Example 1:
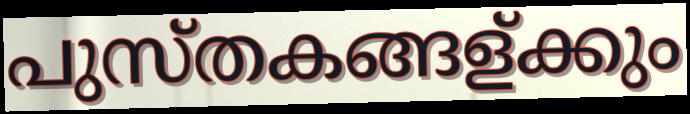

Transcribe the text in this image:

പുസ്തകങ്ങള്ക്കും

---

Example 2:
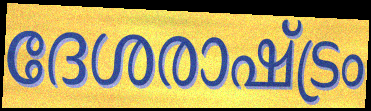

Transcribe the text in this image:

ദേശരാഷ്ട്രം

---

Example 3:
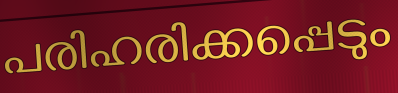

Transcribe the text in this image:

പരിഹരിക്കപ്പെടും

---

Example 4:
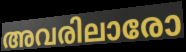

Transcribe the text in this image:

അവരിലാരോ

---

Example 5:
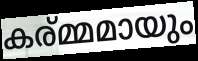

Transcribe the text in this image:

കര്മ്മമായും